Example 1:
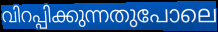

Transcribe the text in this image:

വിറപ്പിക്കുന്നതുപോലെ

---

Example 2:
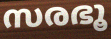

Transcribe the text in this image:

സരഭൂ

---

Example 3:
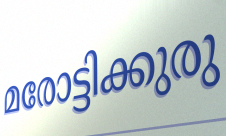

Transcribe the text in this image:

മരോട്ടിക്കുരു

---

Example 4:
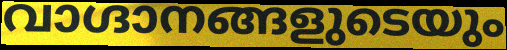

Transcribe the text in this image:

വാഗ്ദാനങ്ങളുടെയും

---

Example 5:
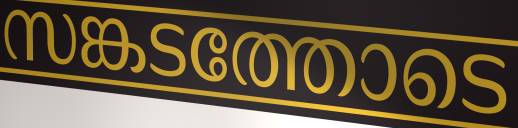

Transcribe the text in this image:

സങ്കടത്തോടെ